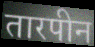
तारपीन